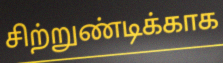
சிற்றுண்டிக்காக